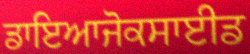
ਡਾਇਆਜੋਕਸਾਈਡ